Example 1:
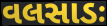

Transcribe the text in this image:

વલસાડઃ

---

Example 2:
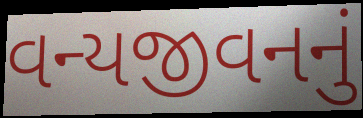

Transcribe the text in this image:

વન્યજીવનનું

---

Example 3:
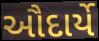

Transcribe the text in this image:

ઔદાર્યે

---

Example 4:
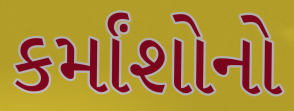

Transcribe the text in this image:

કર્માંશોનો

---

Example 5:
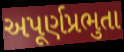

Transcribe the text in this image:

અપૂર્ણપ્રભુતા